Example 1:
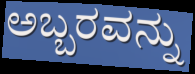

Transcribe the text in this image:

ಅಬ್ಬರವನ್ನು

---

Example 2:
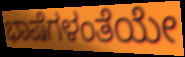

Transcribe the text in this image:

ಭಾಷೆಗಳಂತೆಯೇ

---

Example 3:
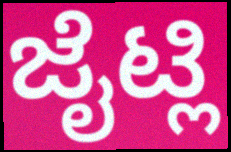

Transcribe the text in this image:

ಜೈಟ್ಲಿ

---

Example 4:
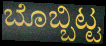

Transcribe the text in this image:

ಬೊಬ್ಬಿಟ್ಟ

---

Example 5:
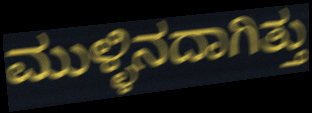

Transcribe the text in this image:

ಮುಳ್ಳಿನದಾಗಿತ್ತು